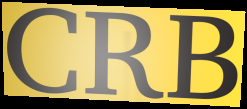
CRB